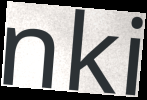
nki